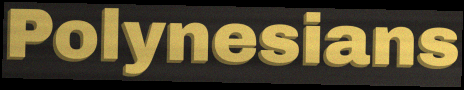
Polynesians